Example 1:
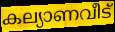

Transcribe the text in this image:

കല്യാണവീട്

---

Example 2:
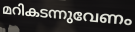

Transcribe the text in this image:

മറികടന്നുവേണം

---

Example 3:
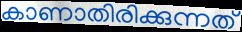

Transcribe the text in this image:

കാണാതിരിക്കുന്നത്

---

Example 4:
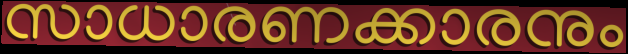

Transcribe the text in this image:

സാധാരണക്കാരനും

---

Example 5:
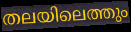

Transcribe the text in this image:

തലയിലെത്തും